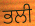
ਭਲੀ